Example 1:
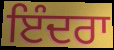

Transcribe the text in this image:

ਇੰਦਰਾ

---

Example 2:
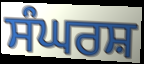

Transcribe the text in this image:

ਸੰਘਰਸ਼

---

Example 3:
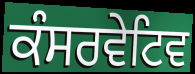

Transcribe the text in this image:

ਕੰਸਰਵੇਟਿਵ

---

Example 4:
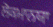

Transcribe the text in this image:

ਲੋਕਮਾਨਯਾ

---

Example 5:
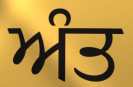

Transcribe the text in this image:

ਅੰਤ